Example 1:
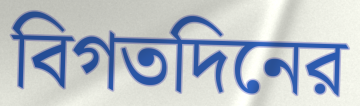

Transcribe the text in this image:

বিগতদিনের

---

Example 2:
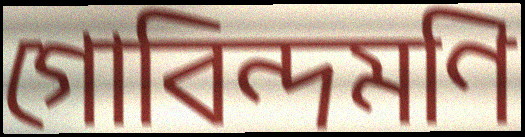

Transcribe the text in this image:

গোবিন্দমণি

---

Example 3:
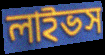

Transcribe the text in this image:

লাইভস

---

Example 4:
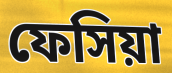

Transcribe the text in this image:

ফেসিয়া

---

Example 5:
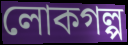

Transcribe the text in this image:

লোকগল্প